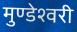
मुण्डेश्वरी